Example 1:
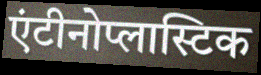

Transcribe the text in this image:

एंटीनोप्लास्टिक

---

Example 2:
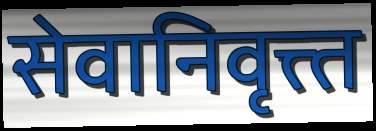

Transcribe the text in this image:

सेवानिवृत्त्त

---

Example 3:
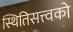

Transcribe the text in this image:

स्थितिसत्त्वको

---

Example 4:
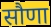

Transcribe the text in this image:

सौणा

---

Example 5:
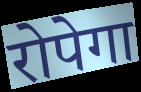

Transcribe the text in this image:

रोपेगा